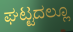
ಘಟ್ಟದಲ್ಲೂ